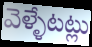
వెళ్ళేటట్లు